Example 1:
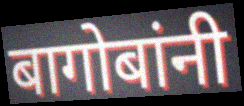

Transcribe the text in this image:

बागोबांनी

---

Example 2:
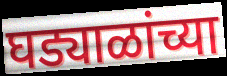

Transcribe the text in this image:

घड्याळांच्या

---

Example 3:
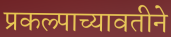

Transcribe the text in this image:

प्रकल्पाच्यावतीने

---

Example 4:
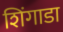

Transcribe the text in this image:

शिंगाडा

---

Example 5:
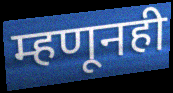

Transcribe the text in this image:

म्‍हणूनही